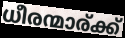
ധീരന്മാര്ക്ക്